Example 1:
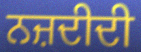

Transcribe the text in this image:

ਨਜ਼ਦੀਦੀ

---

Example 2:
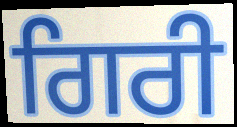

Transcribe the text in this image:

ਗਿਰੀ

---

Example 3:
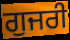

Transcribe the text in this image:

ਗੁਜਰੀ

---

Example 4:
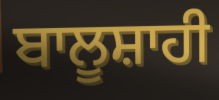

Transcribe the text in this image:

ਬਾਲੂਸ਼ਾਹੀ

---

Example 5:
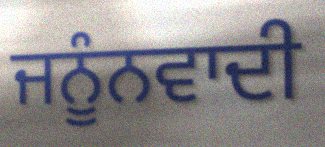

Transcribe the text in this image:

ਜਨੂੰਨਵਾਦੀ